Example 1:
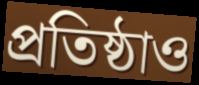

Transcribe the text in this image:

প্রতিষ্ঠাও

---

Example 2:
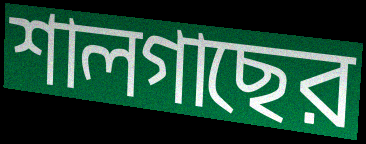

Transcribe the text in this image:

শালগাছের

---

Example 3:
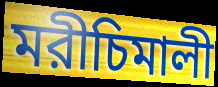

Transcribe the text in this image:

মরীচিমালী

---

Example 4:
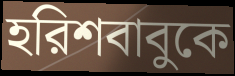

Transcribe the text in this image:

হরিশবাবুকে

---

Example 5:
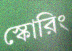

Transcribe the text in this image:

স্কোরিং